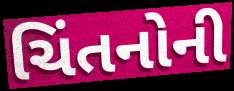
ચિંતનોની